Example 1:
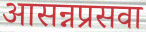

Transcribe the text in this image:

आसन्नप्रसवा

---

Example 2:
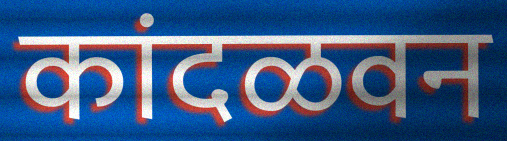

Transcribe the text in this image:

कांदळवन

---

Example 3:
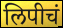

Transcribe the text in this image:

लिपीचं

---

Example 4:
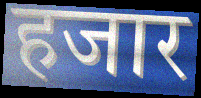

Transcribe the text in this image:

हजार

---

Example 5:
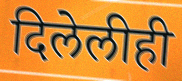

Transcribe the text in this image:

दिलेलीही